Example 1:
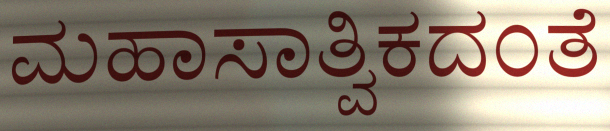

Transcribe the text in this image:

ಮಹಾಸಾತ್ವಿಕದಂತೆ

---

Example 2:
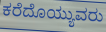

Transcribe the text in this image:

ಕರೆದೊಯ್ಯುವರು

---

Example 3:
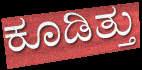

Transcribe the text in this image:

ಕೂಡಿತ್ತು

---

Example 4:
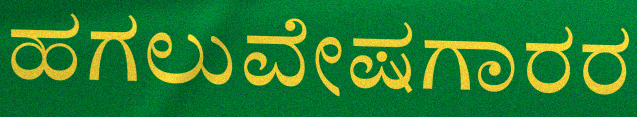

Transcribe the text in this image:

ಹಗಲುವೇಷಗಾರರ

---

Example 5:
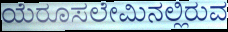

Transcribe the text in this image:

ಯೆರೂಸಲೇಮಿನಲ್ಲಿರುವ